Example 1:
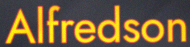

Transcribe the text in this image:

Alfredson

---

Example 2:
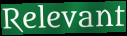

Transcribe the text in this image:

Relevant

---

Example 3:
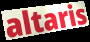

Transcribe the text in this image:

altaris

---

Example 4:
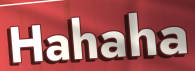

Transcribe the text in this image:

Hahaha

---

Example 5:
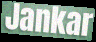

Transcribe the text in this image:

Jankar